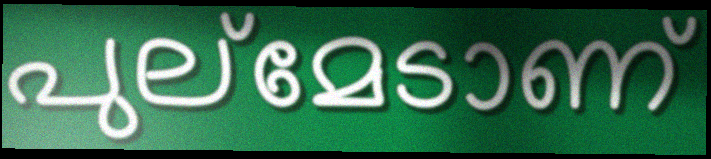
പുല്മേടാണ്